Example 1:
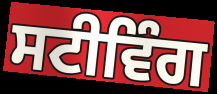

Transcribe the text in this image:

ਸਟੀਵਿੰਗ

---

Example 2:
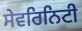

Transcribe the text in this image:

ਸੇਵਰਿਨਿਟੀ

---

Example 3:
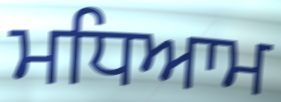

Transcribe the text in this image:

ਮਧਿਆਮ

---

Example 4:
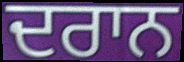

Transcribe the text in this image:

ਦਰਾਨ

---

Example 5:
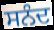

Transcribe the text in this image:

ਸਨੰਦ